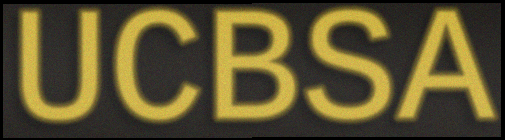
UCBSA